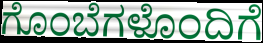
ಗೊಂಬೆಗಳೊಂದಿಗೆ